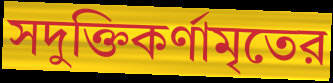
সদুক্তিকর্ণামৃতের